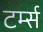
टर्म्स